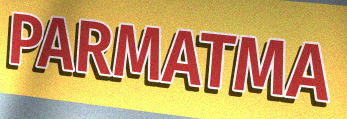
PARMATMA